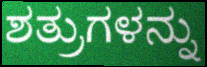
ಶತ್ರುಗಳನ್ನು